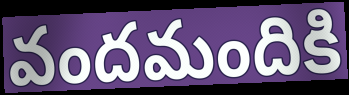
వందమందికి